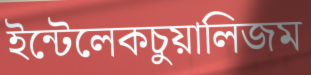
ইন্টেলেকচুয়ালিজম